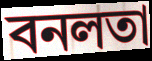
বনলতা